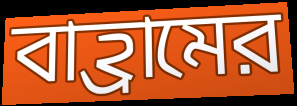
বাহ্রামের